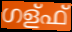
ഗള്ഫ്